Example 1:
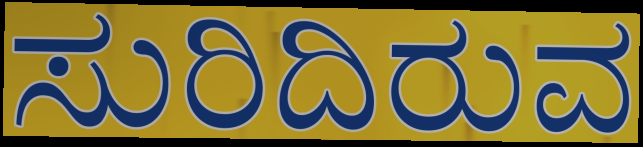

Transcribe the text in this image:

ಸುರಿದಿರುವ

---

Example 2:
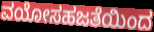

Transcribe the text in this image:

ವಯೋಸಹಜತೆಯಿಂದ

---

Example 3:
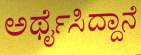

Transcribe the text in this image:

ಅರ್ಥೈಸಿದ್ದಾನೆ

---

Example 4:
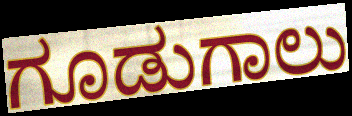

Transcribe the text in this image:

ಗೂಡುಗಾಲು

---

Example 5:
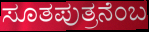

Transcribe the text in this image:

ಸೂತಪುತ್ರನೆಂಬ